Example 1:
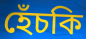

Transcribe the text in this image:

হেঁচকি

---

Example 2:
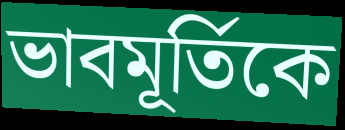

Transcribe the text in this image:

ভাবমূর্তিকে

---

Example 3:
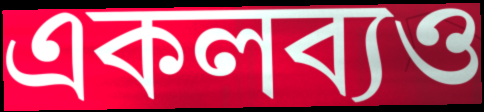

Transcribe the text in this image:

একলব্যও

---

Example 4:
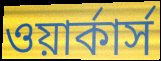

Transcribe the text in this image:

ওয়ার্কার্স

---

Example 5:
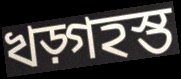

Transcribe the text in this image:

খড়্গহস্ত